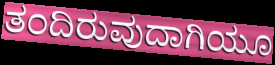
ತಂದಿರುವುದಾಗಿಯೂ